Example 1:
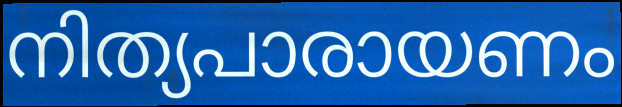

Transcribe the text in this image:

നിത്യപാരായണം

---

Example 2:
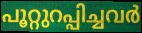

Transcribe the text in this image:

പൂറ്റുറപ്പിച്ചവർ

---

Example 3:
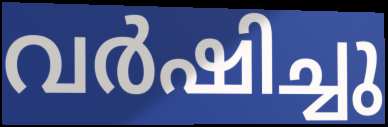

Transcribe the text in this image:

വർഷിച്ചു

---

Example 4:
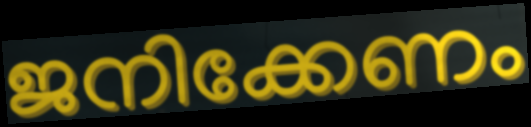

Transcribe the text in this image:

ജനിക്കേണം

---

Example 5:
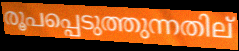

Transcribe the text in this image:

രൂപപ്പെടുത്തുന്നതില്